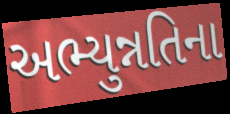
અભ્યુન્નતિના